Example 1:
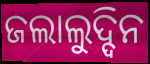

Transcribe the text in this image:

ଜଲାଲୁଦ୍ଦିନ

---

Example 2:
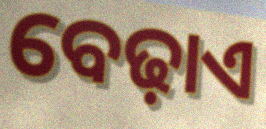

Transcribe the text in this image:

ବେଢ଼ାଏ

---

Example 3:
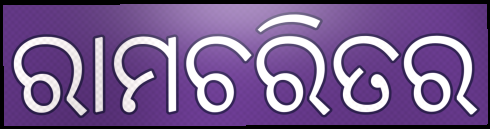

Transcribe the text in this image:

ରାମଚରିତର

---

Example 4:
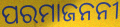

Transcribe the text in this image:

ପରମାଜନନୀ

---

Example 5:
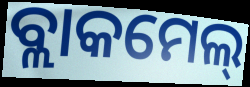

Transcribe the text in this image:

ବ୍ଲାକମେଲ୍